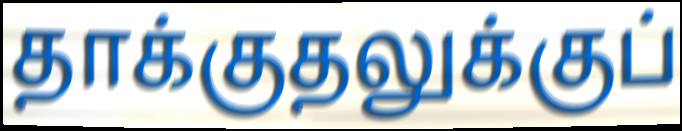
தாக்குதலுக்குப்